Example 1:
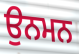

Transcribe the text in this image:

ਉਨਮਨ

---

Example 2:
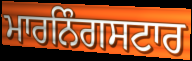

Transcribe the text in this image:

ਮਾਰਨਿੰਗਸਟਾਰ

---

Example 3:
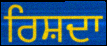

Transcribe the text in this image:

ਰਿਸ਼ਦਾ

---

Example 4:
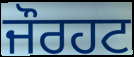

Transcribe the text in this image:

ਜੌਰਹਟ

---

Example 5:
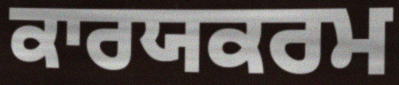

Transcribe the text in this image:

ਕਾਰਯਕਰਮ